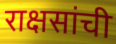
राक्षसांची